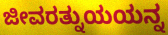
ಜೀವರತ್ನುಯಯನ್ನ